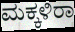
ಮಕ್ಕಳಿರಾ